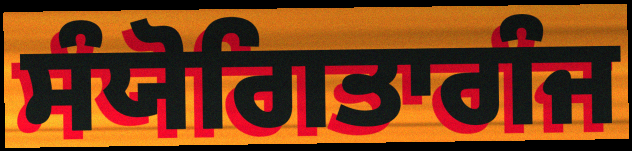
ਸੰਯੋਗਿਤਾਗੰਜ